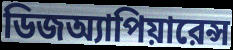
ডিজঅ্যাপিয়ারেন্স